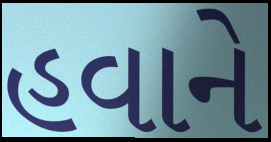
હવાને